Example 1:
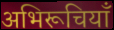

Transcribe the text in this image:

अभिरूचियाँ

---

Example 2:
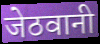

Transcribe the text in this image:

जेठवानी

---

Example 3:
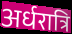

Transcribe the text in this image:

अर्धरात्रि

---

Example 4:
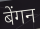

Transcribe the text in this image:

बेंगन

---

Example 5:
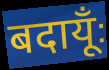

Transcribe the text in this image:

बदायूँः